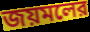
জয়মলের